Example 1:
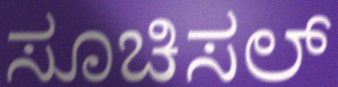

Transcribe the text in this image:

ಸೂಚಿಸಲ್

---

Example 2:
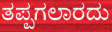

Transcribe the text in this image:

ತಪ್ಪಗಲಾರದು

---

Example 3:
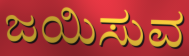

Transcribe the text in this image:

ಜಯಿಸುವ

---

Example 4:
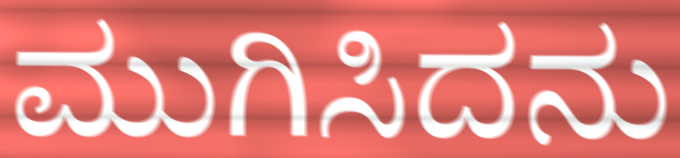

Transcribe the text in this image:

ಮುಗಿಸಿದನು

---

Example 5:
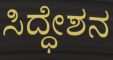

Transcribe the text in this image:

ಸಿದ್ಧೇಶನ